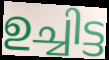
ഉച്ചിട്ട